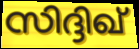
സിദ്ദിഖ്